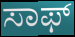
ಸಾಫ್